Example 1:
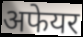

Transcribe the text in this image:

अफेयर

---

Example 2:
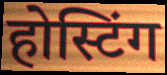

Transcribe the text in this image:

होस्टिंग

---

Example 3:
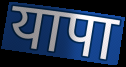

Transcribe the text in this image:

यापा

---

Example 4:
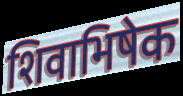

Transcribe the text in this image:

शिवाभिषेक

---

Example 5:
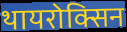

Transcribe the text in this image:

थायरोक्सिन